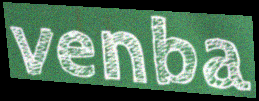
venba